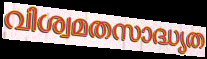
വിശ്വമതസാദ്ധ്യത